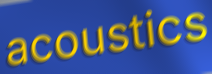
acoustics